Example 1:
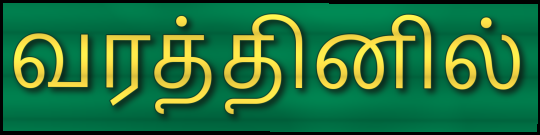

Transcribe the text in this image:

வரத்தினில்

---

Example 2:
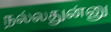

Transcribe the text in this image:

நல்லதுன்னு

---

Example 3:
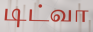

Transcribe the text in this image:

டிட்வா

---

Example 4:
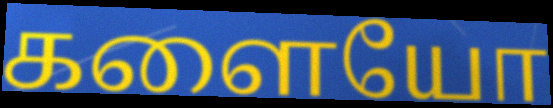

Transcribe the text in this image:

களையோ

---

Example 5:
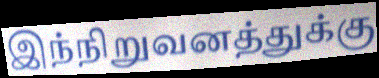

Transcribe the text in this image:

இந்நிறுவனத்துக்கு